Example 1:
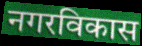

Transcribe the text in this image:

नगरविकास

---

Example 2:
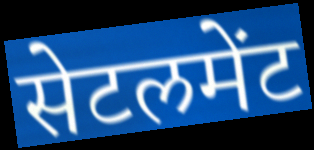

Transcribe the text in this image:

सेटलमेंट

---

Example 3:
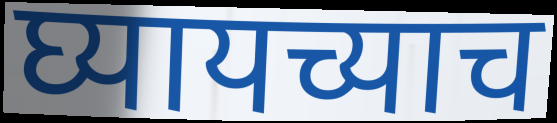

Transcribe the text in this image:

घ्यायच्याच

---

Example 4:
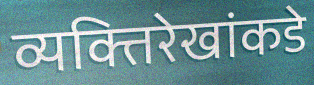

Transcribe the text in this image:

व्यक्तिरेखांकडे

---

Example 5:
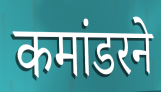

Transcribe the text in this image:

कमांडरने